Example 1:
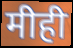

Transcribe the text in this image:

मीही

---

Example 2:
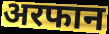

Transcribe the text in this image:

अरफान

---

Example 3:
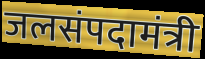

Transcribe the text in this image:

जलसंपदामंत्री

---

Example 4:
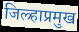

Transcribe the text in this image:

जिल्हाप्रमुख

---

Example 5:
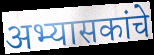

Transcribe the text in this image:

अभ्यासकांचे